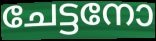
ചേട്ടനോ